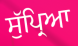
ਸੁੱਪ੍ਰਿਆ